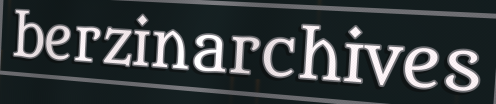
berzinarchives